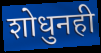
शोधुनही